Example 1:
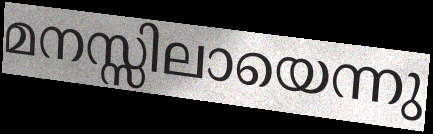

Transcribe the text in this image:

മനസ്സിലായെന്നു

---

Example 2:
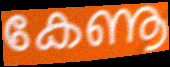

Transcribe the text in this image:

കേണൂ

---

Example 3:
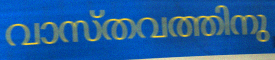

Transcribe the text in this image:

വാസ്തവത്തിനു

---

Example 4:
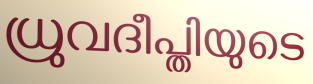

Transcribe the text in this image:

ധ്രുവദീപ്തിയുടെ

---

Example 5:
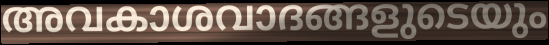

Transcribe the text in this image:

അവകാശവാദങ്ങളുടെയും